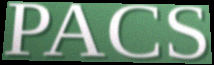
PACS